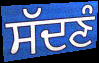
ਸੱਦਣੰ